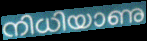
നിധിയാണു